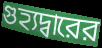
গুহ্যদ্বারের